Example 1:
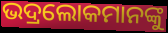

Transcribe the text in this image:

ଭଦ୍ରଲୋକମାନଙ୍କୁ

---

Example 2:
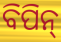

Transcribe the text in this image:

ବିପିନ୍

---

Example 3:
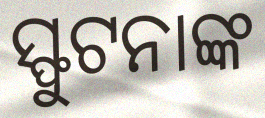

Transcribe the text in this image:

ସ୍ଫୁଟନାଙ୍କ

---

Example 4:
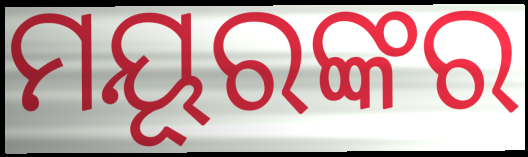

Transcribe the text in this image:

ମୟୂରଙ୍କର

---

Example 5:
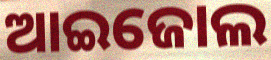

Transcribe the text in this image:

ଆଇଜୋଲ